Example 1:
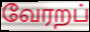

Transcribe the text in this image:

வேரறப்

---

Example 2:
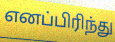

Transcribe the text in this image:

எனப்பிரிந்து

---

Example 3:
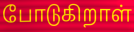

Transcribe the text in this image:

போடுகிறாள்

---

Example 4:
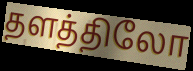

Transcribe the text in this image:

தளத்திலோ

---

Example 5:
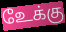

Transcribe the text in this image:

உேக்கு